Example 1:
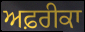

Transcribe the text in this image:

ਅਫ਼ਰੀਕਾ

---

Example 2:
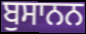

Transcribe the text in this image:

ਬੁਸਾਨਨ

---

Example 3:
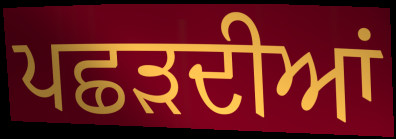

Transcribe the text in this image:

ਪਛੜਦੀਆਂ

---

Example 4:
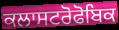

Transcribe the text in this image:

ਕਲਾਸਟਰੋਫੋਬਿਕ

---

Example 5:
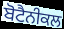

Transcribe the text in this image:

ਬੋਟੈਨੀਕਲ